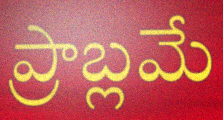
ప్రాబ్లమే